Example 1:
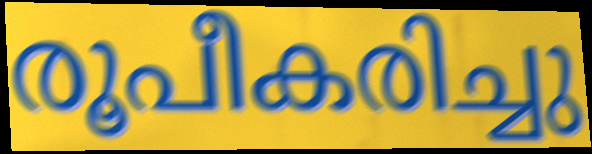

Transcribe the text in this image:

രൂപീകരിച്ചു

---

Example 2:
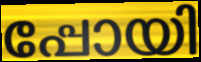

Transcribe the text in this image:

പ്പോയി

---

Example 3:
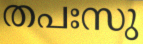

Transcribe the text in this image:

തപഃസു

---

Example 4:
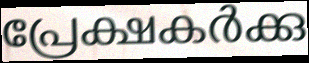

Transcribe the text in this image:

പ്രേക്ഷകർക്കു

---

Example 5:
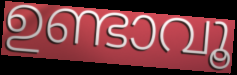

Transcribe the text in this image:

ഉണ്ടാവൂ